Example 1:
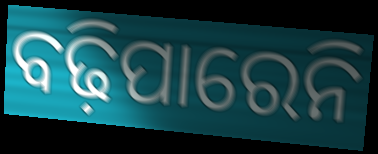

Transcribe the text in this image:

ବଢ଼ିପାରେନି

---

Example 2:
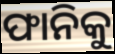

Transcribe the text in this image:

ଫାନିକୁ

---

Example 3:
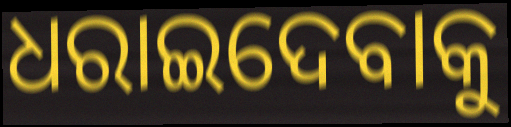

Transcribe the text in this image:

ଧରାଇଦେବାକୁ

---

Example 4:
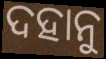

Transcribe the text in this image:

ଦହାନୁ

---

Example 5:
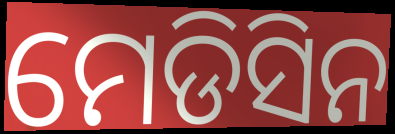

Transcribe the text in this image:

ମେଡିସିନ